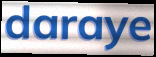
daraye